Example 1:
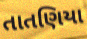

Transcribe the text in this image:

તાતણિયા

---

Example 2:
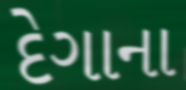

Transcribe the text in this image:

દેગાના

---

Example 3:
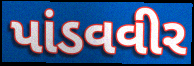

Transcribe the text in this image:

પાંડવવીર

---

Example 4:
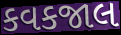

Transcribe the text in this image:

કવકજાલ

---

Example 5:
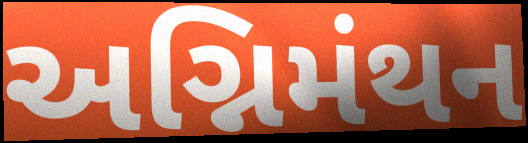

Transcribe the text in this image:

અગ્નિમંથન